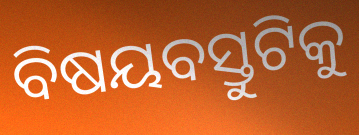
ବିଷୟବସ୍ତୁଟିକୁ